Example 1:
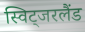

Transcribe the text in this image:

स्विट्जरलैंड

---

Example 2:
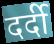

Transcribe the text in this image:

दर्दी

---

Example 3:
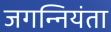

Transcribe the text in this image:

जगन्नियंता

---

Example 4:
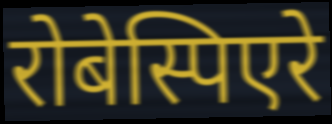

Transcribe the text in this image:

रोबेस्पिएरे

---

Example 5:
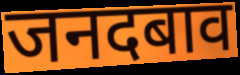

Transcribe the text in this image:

जनदबाव